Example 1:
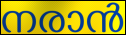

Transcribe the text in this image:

നരാൻ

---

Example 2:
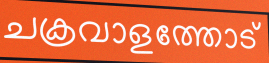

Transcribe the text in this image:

ചക്രവാളത്തോട്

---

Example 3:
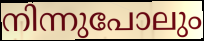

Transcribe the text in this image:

നിന്നുപോലും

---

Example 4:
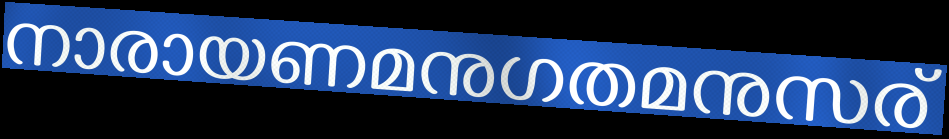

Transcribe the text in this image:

നാരായണമനുഗതമനുസര്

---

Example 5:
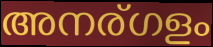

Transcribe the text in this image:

അനര്ഗളം